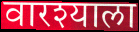
वारश्याला